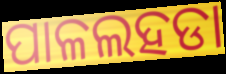
ପାଳଲହଡା